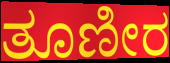
ತೂಣೀರ